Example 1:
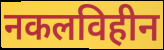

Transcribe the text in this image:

नकलविहीन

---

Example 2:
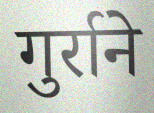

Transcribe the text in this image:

गुर्राने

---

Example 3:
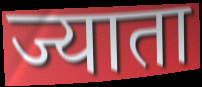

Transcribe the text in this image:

ज्याता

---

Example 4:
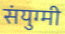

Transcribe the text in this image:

संयुग्मी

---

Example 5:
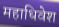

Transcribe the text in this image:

महाधिवेश